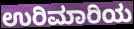
ಉರಿಮಾರಿಯ